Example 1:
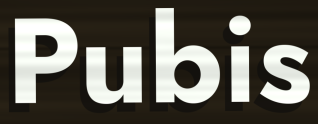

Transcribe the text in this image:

Pubis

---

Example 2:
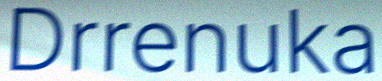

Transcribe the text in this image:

Drrenuka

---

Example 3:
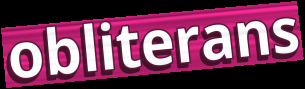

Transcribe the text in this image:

obliterans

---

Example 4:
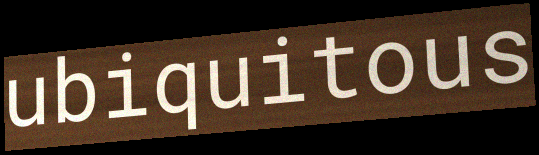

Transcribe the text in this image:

ubiquitous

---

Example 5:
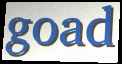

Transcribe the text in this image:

goad